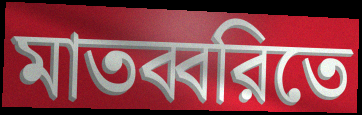
মাতব্বরিতে